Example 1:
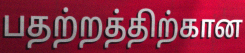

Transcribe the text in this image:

பதற்றத்திற்கான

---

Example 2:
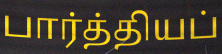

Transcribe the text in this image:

பார்த்தியப்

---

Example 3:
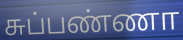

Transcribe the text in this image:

சுப்பண்ணா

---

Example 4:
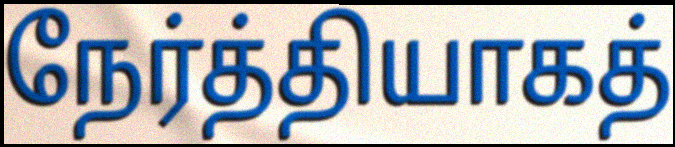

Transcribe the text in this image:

நேர்த்தியாகத்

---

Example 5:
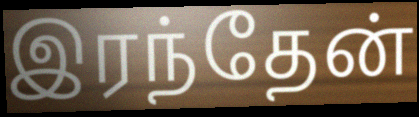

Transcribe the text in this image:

இரந்தேன்